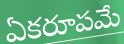
ఏకరూపమే